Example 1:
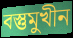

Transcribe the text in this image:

বস্তুমুখীন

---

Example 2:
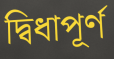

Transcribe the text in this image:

দ্বিধাপূর্ণ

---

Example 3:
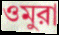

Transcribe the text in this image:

ওমুরা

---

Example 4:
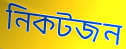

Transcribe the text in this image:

নিকটজন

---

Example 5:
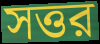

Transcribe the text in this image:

সত্তর